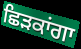
ਛਿੜਕਾਂਗਾ